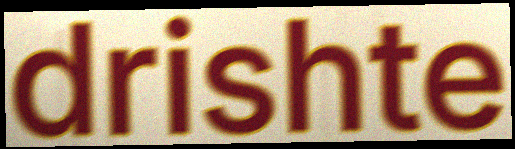
drishte